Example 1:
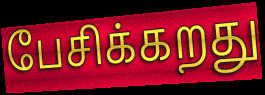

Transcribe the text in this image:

பேசிக்கறது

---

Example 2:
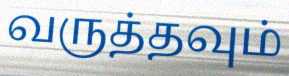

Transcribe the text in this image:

வருத்தவும்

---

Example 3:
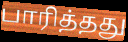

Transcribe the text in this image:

பாரித்தது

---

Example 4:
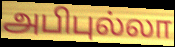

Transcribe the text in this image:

அபிபுல்லா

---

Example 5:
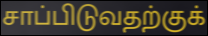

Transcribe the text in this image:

சாப்பிடுவதற்குக்